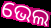
ଭେଲ